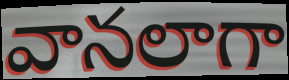
వానలాగా